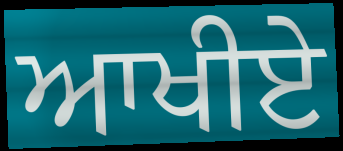
ਆਖੀਏ